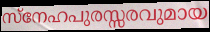
സ്നേഹപുരസ്സരവുമായ